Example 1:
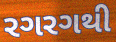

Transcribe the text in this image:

રગરગથી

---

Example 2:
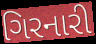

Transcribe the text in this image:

ગિરનારી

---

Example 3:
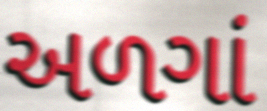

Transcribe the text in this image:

અળગાં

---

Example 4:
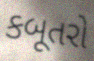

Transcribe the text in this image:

કબૂતરો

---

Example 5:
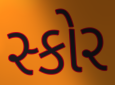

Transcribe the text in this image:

સ્કોર